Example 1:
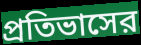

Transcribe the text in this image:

প্রতিভাসের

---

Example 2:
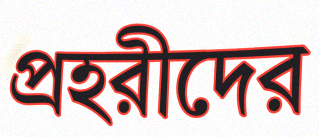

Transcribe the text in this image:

প্রহরীদের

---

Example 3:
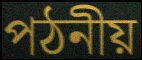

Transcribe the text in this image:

পঠনীয়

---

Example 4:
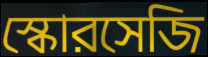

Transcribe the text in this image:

স্কোরসেজি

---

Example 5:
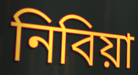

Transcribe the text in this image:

নিবিয়া